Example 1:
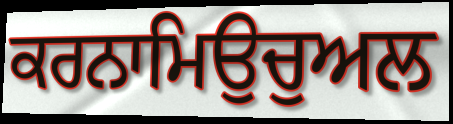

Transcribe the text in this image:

ਕਰਨਾਮਿਉਚੁਅਲ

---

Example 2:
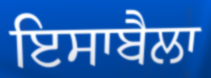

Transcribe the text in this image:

ਇਸਾਬੈਲਾ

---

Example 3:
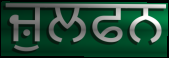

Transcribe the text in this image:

ਜ਼ੁਲਫਨ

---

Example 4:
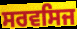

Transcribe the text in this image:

ਸਰਵਸਿਜ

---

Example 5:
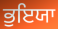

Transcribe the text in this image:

ਭੁਇਯਾ